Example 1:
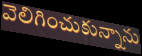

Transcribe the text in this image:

వెలిగించుకున్నాను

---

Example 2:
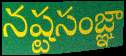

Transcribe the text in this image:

నష్టసంజ్ఞా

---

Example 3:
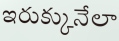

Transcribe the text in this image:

ఇరుక్కునేలా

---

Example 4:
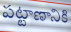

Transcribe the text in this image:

పట్టాణానికి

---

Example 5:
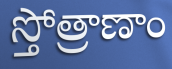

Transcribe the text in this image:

స్తోత్రాణాం